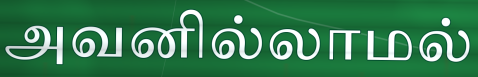
அவனில்லாமல்